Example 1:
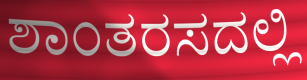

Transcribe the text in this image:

ಶಾಂತರಸದಲ್ಲಿ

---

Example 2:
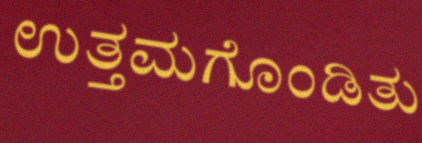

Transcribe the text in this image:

ಉತ್ತಮಗೊಂಡಿತು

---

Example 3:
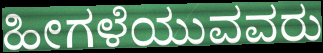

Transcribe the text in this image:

ಹೀಗಳೆಯುವವರು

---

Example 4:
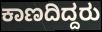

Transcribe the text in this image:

ಕಾಣದಿದ್ದರು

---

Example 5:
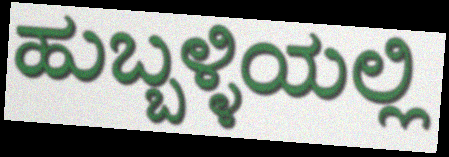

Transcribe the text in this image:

ಹುಬ್ಬಳ್ಳಿಯಲ್ಲಿ